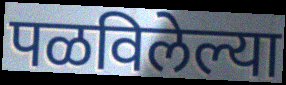
पळविलेल्या